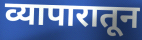
व्यापारातून